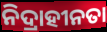
ନିଦ୍ରାହୀନତା